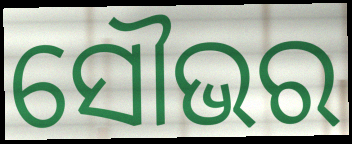
ସୌଭର